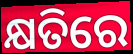
କ୍ଷତିରେ